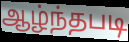
ஆழ்ந்தபடி